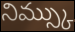
నిమ్స్కు